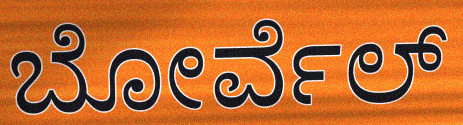
ಬೋರ್ವೆಲ್